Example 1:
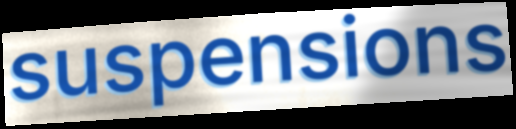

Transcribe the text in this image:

suspensions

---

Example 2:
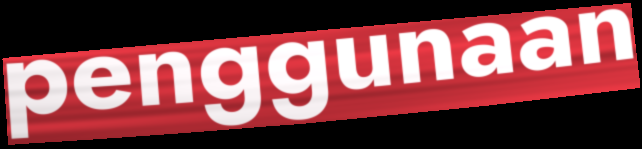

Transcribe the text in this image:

penggunaan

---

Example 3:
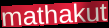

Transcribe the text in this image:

mathakut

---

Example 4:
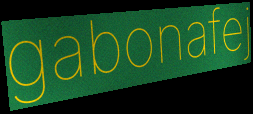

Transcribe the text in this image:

gabonafej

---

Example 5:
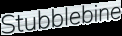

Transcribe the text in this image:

Stubblebine